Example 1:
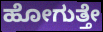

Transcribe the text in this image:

ಹೋಗುತ್ತೇ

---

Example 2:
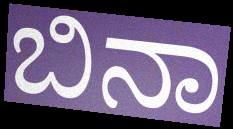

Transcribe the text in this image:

ಬಿನಾ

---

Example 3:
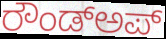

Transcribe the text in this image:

ರೌಂಡ್ಅಪ್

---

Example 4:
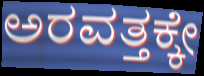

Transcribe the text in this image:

ಅರವತ್ತಕ್ಕೇ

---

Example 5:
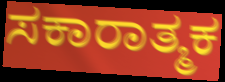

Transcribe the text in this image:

ಸಕಾರಾತ್ಮಕ